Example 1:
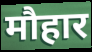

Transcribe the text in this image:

मौहार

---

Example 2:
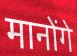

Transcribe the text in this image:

मानोंगे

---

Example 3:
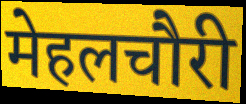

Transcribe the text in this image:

मेहलचौरी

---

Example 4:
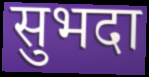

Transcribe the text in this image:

सुभदा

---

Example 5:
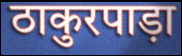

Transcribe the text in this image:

ठाकुरपाड़ा